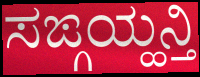
ಸಙ್ಗಯ್ಹನ್ತಿ